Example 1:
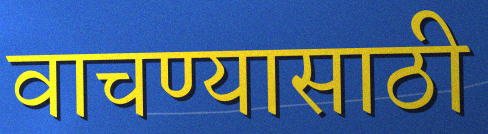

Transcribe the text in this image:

वाचण्यासाठी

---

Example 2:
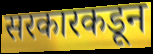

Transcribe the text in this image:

सरकारकडून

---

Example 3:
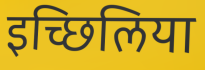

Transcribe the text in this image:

इच्छिलिया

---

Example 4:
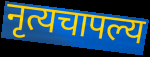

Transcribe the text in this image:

नृत्यचापल्य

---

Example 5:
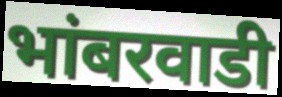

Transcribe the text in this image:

भांबरवाडी